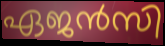
ഏജൻസി